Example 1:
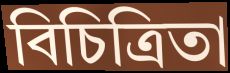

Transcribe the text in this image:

বিচিত্রিতা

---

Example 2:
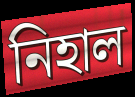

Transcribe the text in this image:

নিহাল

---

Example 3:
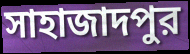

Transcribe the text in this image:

সাহাজাদপুর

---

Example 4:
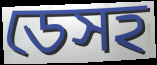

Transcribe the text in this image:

ডেসহ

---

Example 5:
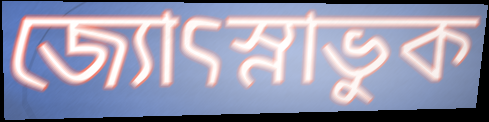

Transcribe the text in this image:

জ্যোৎস্নাভুক